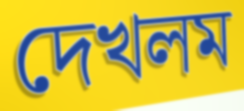
দেখলম